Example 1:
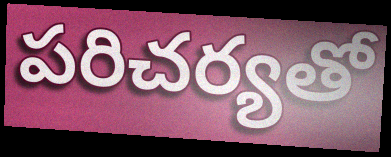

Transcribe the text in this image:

పరిచర్యతో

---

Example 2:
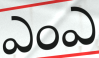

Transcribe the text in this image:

ఎంఎ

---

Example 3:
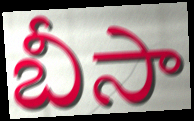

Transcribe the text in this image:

బీసా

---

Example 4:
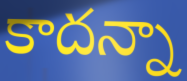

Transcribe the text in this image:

కాదన్నా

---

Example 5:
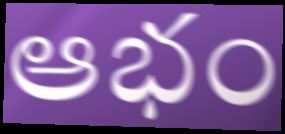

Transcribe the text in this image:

ఆభం